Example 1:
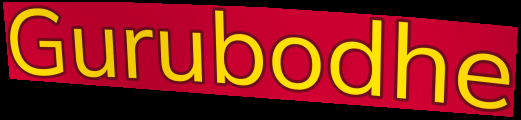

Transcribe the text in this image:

Gurubodhe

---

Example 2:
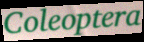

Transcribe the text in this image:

Coleoptera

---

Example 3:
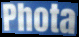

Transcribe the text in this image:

Phota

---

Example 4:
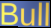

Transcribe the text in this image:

Bull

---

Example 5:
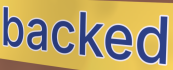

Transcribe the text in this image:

backed